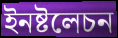
ইনষ্টলেচন